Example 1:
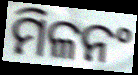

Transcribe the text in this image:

ମିଳନଂ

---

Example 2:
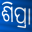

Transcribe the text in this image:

ଶିପ୍ରା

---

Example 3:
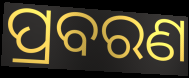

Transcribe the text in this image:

ପ୍ରବରଣ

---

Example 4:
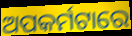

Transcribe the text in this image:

ଅପକର୍ମଟାରେ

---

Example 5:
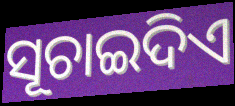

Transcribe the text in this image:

ସୂଚାଇଦିଏ